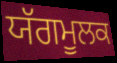
ਯੱਗਮੂਲਕ